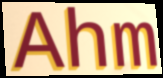
Ahm